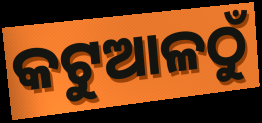
କଟୁଆଳଠୁଁ